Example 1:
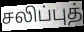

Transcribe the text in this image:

சலிப்புத்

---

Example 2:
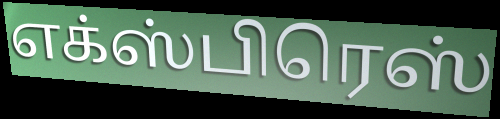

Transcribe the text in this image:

எக்ஸ்பிரெஸ்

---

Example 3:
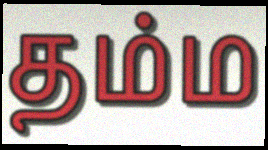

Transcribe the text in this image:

தம்ம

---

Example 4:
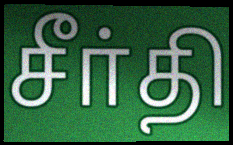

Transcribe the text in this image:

சீர்தி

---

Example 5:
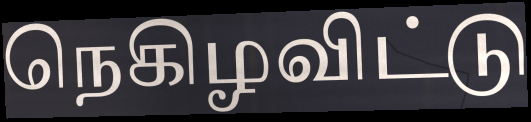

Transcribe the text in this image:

நெகிழவிட்டு